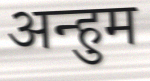
अन्हुम